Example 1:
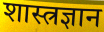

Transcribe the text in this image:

शास्त्रज्ञान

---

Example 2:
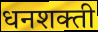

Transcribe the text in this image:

धनशक्ती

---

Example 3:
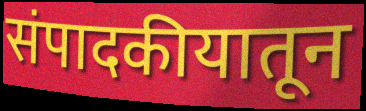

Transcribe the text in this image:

संपादकीयातून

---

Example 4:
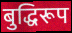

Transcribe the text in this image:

बुद्धिरूप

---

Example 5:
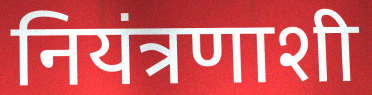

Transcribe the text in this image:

नियंत्रणाशी